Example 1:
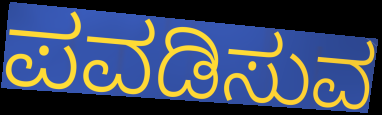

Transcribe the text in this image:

ಪವಡಿಸುವ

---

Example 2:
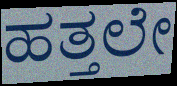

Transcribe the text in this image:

ಹತ್ತಲೇ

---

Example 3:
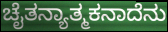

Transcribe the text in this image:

ಚೈತನ್ಯಾತ್ಮಕನಾದೆನು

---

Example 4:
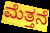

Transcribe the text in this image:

ಮೆತ್ತನೆ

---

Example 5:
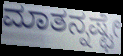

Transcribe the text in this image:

ಮಾತನ್ನಷ್ಟೇ